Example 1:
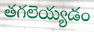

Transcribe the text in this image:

తగలెయ్యడం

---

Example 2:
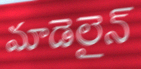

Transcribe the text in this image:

మాడెలైన్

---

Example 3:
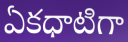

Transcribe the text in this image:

ఏకధాటిగా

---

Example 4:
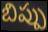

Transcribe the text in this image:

బిప్పు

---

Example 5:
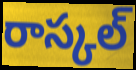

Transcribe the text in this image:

రాస్కల్